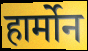
हार्मोन